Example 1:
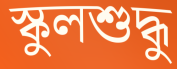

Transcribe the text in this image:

স্কুলশুদ্ধু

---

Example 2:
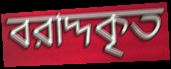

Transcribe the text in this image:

বরাদ্দকৃত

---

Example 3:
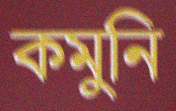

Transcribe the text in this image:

কমুনি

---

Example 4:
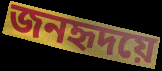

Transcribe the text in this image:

জনহৃদয়ে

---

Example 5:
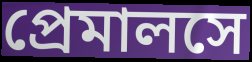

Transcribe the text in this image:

প্রেমালসে